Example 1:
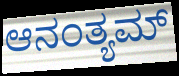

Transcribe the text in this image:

ಆನಂತ್ಯಮ್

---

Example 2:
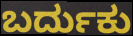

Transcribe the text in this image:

ಬರ್ದುಕು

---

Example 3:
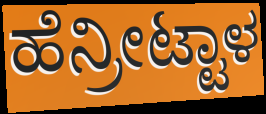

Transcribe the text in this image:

ಹೆನ್ರೀಟ್ಟಾಳ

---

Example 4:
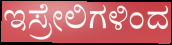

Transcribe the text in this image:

ಇಸ್ರೇಲಿಗಳಿಂದ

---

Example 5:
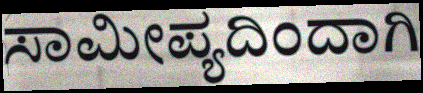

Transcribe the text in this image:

ಸಾಮೀಪ್ಯದಿಂದಾಗಿ